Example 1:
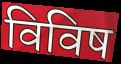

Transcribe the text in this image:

विविष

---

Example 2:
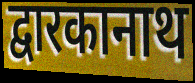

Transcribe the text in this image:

द्वारकानाथ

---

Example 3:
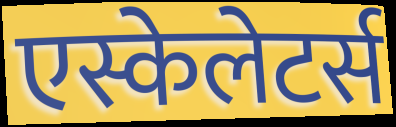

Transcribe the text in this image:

एस्केलेटर्स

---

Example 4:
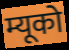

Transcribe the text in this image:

म्यूको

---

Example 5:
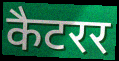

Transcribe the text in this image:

कैटरर